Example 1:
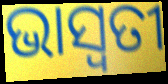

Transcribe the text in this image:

ଭାସ୍ଵତୀ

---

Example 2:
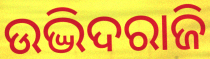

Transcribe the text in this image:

ଉଦ୍ଭିଦରାଜି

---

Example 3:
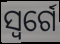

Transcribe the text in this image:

ସ୍ୱର୍ଗେ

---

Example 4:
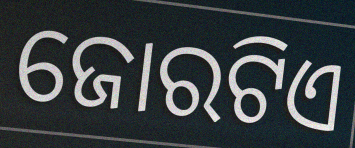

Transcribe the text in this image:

ଜୋରଟିଏ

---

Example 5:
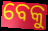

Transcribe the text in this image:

ବେକୁ